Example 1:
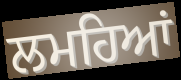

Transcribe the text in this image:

ਲਮਹਿਆਂ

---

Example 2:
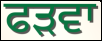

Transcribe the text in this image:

ਫੜਵਾ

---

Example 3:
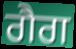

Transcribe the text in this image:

ਗੈਗ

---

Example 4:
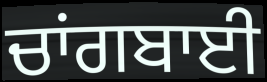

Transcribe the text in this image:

ਚਾਂਗਬਾਈ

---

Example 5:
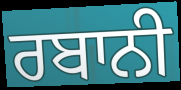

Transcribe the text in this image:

ਰਬਾਨੀ